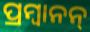
ପ୍ରମ୍ବାନନ୍